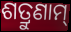
ଶତ୍ରୁଣାମ୍